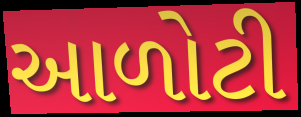
આળોટી